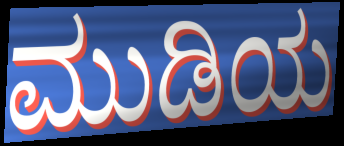
ಮುಡಿಯ